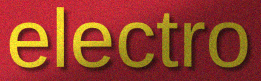
electro